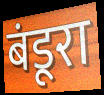
बंडूरा